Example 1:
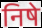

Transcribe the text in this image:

निषे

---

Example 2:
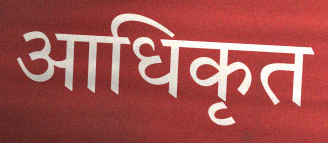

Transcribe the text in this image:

आधिकृत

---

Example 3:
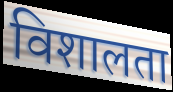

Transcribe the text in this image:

विशालता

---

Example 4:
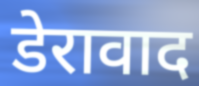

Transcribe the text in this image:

डेरावाद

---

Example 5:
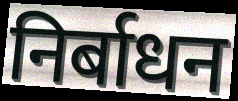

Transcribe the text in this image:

निर्बाधन